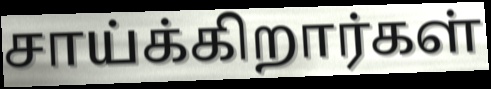
சாய்க்கிறார்கள்